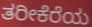
ತರೀಕೆರೆಯ